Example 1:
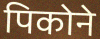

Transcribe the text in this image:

पिकोने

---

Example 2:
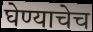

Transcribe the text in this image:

घेण्याचेच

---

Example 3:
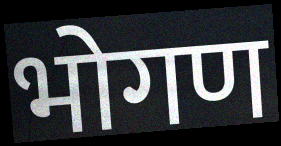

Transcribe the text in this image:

भोगण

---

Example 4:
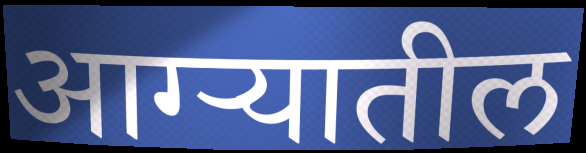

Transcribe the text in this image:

आग्ऱ्यातील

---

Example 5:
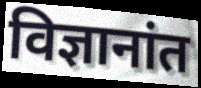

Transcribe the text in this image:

विज्ञानांत